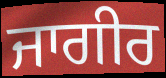
ਜਾਗੀਰ